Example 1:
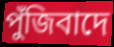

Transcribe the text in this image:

পুঁজিবাদে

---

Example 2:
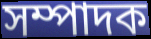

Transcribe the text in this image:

সম্পাদক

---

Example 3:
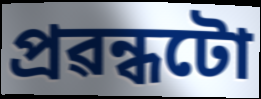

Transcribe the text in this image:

প্ৰৱন্ধটো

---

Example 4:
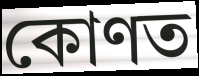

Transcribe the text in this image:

কোণত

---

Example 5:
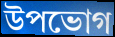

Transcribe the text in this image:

উপভোগ